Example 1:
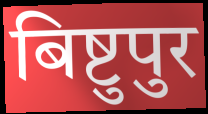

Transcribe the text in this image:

बिष्टुपुर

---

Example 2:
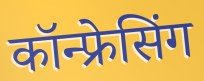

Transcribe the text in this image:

कॉन्फ्रेसिंग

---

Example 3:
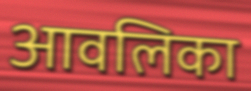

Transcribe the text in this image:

आवलिका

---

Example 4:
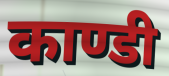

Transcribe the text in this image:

काण्डी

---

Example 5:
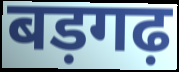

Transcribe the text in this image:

बड़गढ़